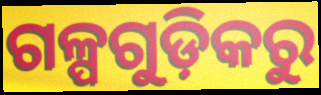
ଗଳ୍ପଗୁଡ଼ିକରୁ